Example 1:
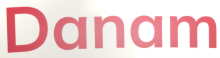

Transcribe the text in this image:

Danam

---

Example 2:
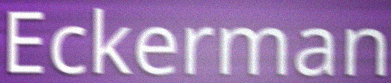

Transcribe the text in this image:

Eckerman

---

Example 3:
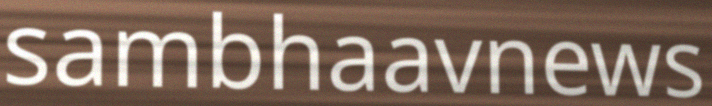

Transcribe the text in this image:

sambhaavnews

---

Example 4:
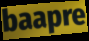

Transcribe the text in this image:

baapre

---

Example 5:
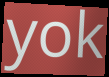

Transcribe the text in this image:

yok